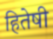
हितेषी